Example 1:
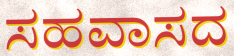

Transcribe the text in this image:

ಸಹವಾಸದ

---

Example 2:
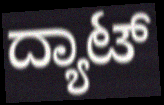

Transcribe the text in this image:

ದ್ಯಾಟ್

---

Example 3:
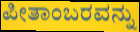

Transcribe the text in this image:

ಪೀತಾಂಬರವನ್ನು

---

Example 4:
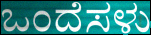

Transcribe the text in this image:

ಒಂದೆಸಳು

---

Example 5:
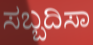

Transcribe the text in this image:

ಸಬ್ಬದಿಸಾ